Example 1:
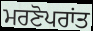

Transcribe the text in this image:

ਮਰਣੋਪਰਾਂਤ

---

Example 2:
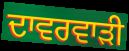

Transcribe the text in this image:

ਦਾਵਰਵਾੜੀ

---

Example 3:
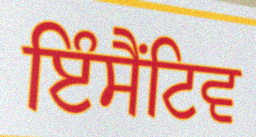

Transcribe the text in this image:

ਇੰਸੈਂਟਿਵ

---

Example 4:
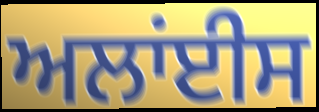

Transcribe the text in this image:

ਅਲਾਂਈਸ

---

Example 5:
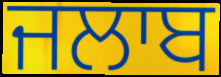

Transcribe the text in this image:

ਜਲਾਬ